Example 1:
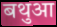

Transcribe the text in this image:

बथुआ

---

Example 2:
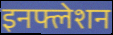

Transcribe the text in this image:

इनफ्लेशन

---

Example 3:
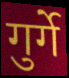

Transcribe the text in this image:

गुर्गे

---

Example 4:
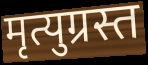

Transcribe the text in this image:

मृत्युग्रस्त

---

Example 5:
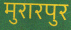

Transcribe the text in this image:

मुरारपुर